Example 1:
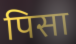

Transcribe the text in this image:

पिसा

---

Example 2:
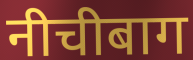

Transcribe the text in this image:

नीचीबाग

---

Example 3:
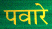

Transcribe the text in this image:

पवारे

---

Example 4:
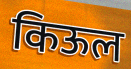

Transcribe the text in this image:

किऊल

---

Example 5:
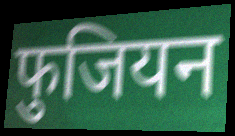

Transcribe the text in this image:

फुजियन